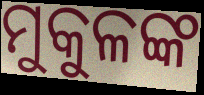
ମୁକୁଳଙ୍କ